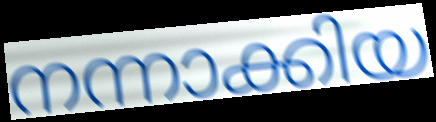
നന്നാക്കിയ